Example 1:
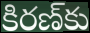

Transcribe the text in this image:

కిరణ్‌కు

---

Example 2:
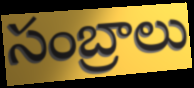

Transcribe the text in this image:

సంబ్రాలు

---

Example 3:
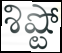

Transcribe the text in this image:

శిష్టో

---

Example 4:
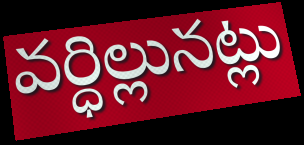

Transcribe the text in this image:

వర్ధిల్లునట్లు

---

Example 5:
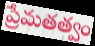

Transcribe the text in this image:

ప్రేమతత్వం